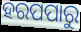
ହରପପାରୁ